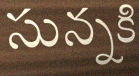
సున్నకి